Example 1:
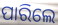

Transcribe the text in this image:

ପାରିଲେ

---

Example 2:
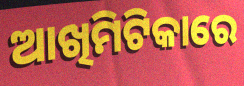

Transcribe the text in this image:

ଆଖିମିଟିକାରେ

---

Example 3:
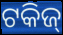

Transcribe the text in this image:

ଟକିଜ୍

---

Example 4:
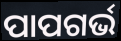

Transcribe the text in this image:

ପାପଗର୍ଭ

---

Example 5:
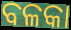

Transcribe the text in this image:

ବଳକା